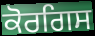
ਕੋਰਗਿਸ